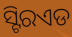
ସ୍ଟିରଏଡ